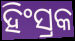
ହିଂସ୍ରକ